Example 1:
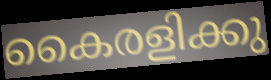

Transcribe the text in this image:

കൈരളിക്കു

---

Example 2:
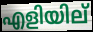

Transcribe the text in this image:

എളിയില്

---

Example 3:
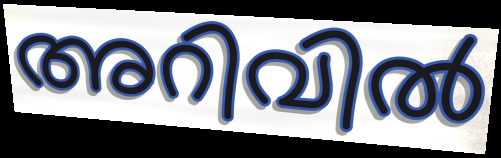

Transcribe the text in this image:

അറിവിൽ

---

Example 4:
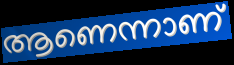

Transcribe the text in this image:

ആണെന്നാണ്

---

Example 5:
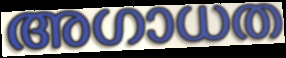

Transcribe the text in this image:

അഗാധത